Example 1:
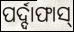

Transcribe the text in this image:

ପର୍ଦ୍ଦାଫାସ୍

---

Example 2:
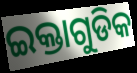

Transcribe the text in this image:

ଇକ୍ତାଗୁଡିକ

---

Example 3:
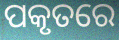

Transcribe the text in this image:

ପକୃତରେ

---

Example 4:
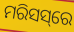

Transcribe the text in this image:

ମରିସସ୍‌ରେ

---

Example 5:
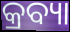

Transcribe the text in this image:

କ୍ରବ୍ୟା